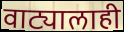
वाट्यालाही